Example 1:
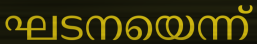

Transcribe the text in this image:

ഘടനയെന്ന്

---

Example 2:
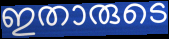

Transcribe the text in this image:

ഇതാരുടെ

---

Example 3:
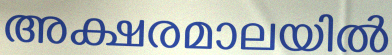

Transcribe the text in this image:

അക്ഷരമാലയിൽ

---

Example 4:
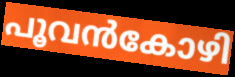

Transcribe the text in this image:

പൂവൻകോഴി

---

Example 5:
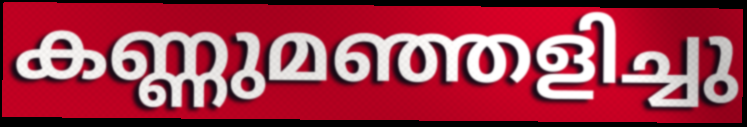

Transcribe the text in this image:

കണ്ണുമഞ്ഞളിച്ചു